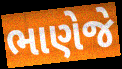
ભાણેજે